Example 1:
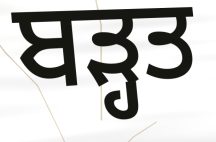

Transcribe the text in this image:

ਬੜ੍ਹਤ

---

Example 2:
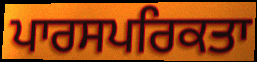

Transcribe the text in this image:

ਪਾਰਸਪਰਿਕਤਾ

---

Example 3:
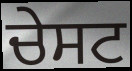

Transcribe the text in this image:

ਚੇਸਟ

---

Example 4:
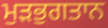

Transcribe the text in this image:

ਮੁੜਭੁਗਤਾਨ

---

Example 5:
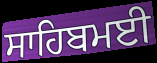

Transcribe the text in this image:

ਸਾਹਿਬਮਈ